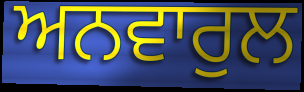
ਅਨਵਾਰੁਲ